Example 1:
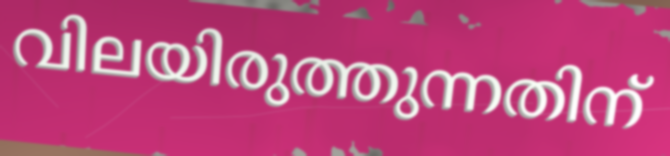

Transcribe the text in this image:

വിലയിരുത്തുന്നതിന്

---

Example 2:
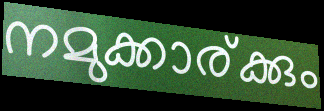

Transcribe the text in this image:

നമുക്കാര്ക്കും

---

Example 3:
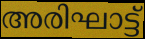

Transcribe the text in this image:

അരിഘാട്ട്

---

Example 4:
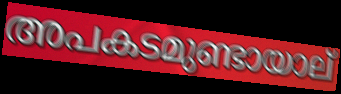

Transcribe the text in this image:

അപകടമുണ്ടായാല്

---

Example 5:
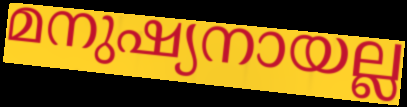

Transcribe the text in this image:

മനുഷ്യനായല്ല